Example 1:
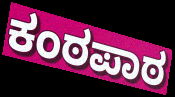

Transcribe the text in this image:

ಕಂಠಪಾಠ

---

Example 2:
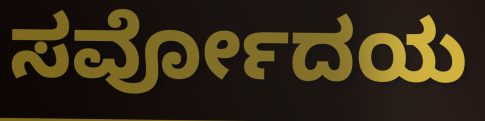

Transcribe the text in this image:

ಸರ್ವೋದಯ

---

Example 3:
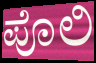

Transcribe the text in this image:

ಪೊಲಿ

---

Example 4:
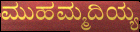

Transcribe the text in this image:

ಮುಹಮ್ಮದಿಯ್ಯ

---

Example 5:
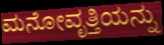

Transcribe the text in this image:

ಮನೋವೃತ್ತಿಯನ್ನು